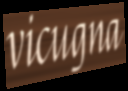
vicugna